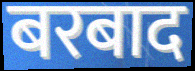
बरबाद